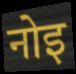
नोइ